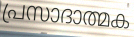
പ്രസാദാത്മക